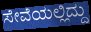
ಸೇವೆಯಲ್ಲಿದ್ದು